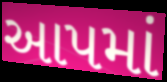
આપમાં